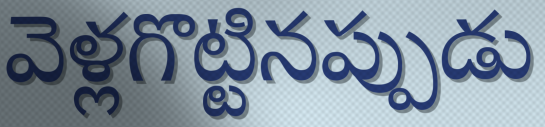
వెళ్లగొట్టినప్పుడు